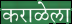
कराळेला